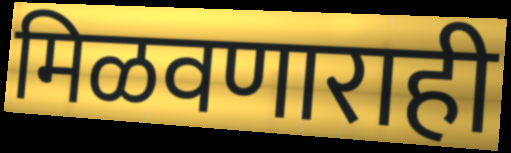
मिळवणाराही